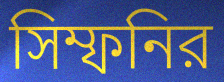
সিম্ফনির